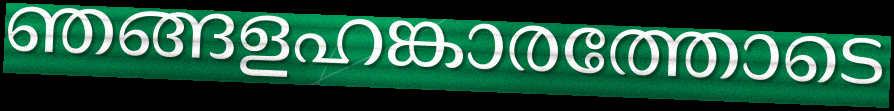
ഞങ്ങളഹങ്കാരത്തോടെ